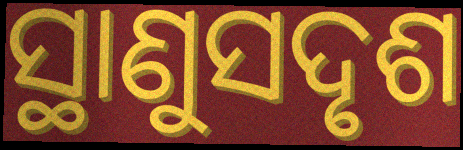
ସ୍ଥାଣୁସଦୃଶ